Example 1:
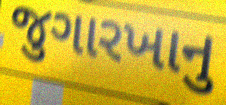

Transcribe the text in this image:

જુગારખાનુ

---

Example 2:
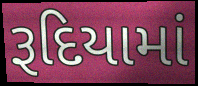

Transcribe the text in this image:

રૂદિયામાં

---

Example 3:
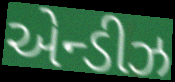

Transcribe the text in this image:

એન્ડીઝ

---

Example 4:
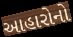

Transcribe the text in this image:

આહારોનો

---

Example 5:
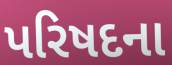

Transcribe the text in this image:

પરિષદના